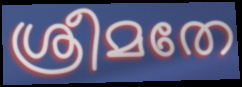
ശ്രീമതേ